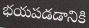
భయపడడానికి